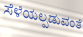
ಸೆಳೆಯಲ್ಪಡುವಂತೆ